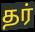
தர்